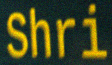
Shri